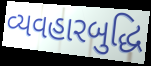
વ્યવહારબુદ્ધિ